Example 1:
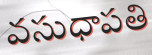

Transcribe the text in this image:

వసుధాపతి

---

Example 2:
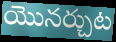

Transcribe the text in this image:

యొనర్చుట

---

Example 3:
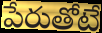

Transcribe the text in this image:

పేరుతోటే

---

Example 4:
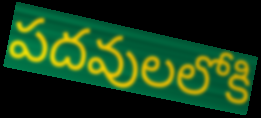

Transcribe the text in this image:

పదవులలోకి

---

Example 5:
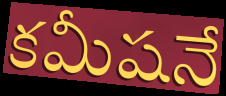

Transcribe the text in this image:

కమీషనే